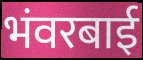
भंवरबाई